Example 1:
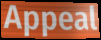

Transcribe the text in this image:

Appeal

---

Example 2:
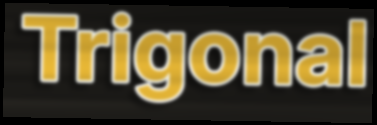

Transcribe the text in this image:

Trigonal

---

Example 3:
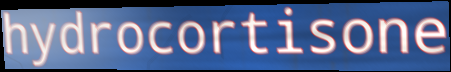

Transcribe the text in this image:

hydrocortisone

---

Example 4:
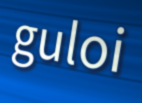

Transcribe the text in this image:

guloi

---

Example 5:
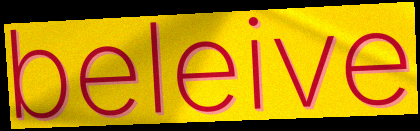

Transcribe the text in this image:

beleive